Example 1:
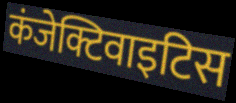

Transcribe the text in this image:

कंजेक्टिवाइटिस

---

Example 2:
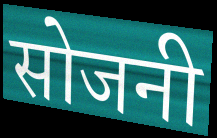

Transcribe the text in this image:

सोजनी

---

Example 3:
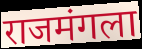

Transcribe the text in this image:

राजमंगला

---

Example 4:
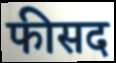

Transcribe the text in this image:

फीसद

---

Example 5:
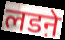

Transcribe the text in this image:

लडऩे